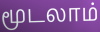
மூடலாம்